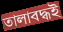
তালাবদ্ধই